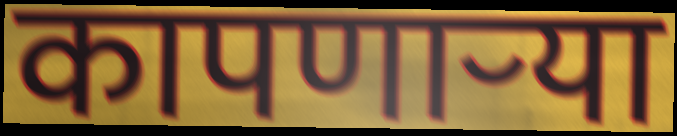
कापणाऱ्या